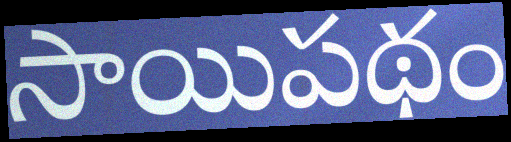
సాయిపథం